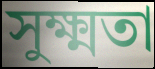
সুক্ষ্মতা